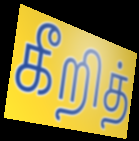
கீறித்